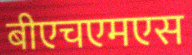
बीएचएमएस